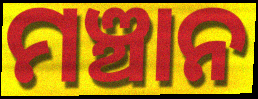
ମଞ୍ଚାନ